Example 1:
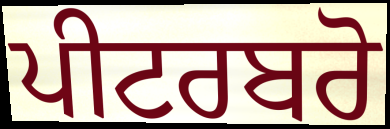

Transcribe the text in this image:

ਪੀਟਰਬਰੋ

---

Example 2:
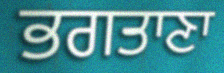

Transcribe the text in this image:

ਭਗਤਾਣਾ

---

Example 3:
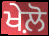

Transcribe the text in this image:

ਖੇਲ਼ੋ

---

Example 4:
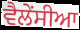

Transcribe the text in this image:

ਵੈਲੇਂਸੀਆ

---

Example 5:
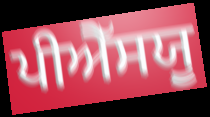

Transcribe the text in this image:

ਪੀਐੱਸਯੂ